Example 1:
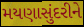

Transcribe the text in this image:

મયણાસુંદરીને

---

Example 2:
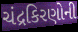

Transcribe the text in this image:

ચંદ્રકિરણોની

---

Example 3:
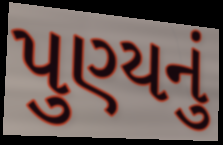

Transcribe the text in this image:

પુણ્યનું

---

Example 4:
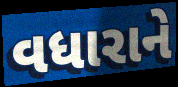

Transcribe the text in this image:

વધારાને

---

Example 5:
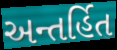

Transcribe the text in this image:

અન્તર્હિત